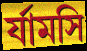
র্যামসি